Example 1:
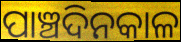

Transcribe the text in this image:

ପାଞ୍ଚଦିନକାଳ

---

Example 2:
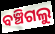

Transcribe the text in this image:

ବଞ୍ଚିଗଲୁ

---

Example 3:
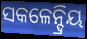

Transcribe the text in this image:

ସକଳେନ୍ଦ୍ରିୟ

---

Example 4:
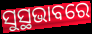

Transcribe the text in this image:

ସୁସ୍ଥଭାବରେ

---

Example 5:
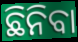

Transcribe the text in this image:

ଛିନିବା